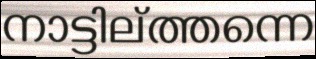
നാട്ടില്ത്തന്നെ